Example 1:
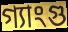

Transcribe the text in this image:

গ্যাংগু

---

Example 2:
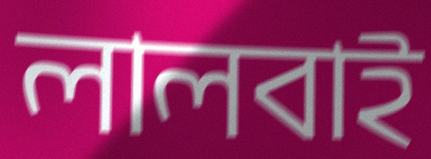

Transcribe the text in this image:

লালবাই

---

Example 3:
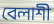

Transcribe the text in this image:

বেলাশী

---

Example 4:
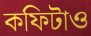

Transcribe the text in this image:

কফিটাও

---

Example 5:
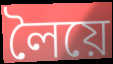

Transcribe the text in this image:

লৈয়ে